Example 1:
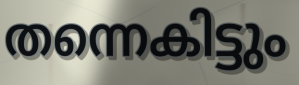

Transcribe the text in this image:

തന്നെകിട്ടും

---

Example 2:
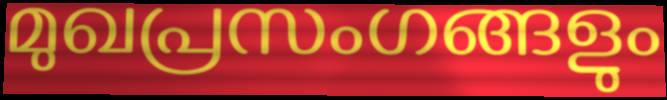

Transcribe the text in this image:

മുഖപ്രസംഗങ്ങളും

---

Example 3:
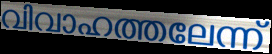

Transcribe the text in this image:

വിവാഹത്തലേന്ന്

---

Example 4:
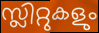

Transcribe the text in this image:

സ്ലിറ്റുകളും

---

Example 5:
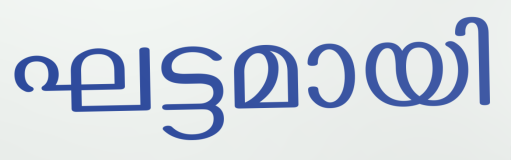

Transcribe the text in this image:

ഘട്ടമായി